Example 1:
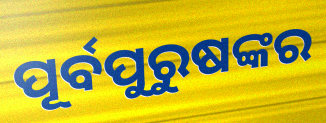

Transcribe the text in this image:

ପୂର୍ବପୁରୁଷଙ୍କର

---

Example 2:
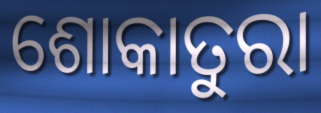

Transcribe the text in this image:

ଶୋକାତୁରା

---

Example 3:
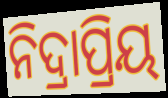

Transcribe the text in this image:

ନିଦ୍ରାପ୍ରିୟ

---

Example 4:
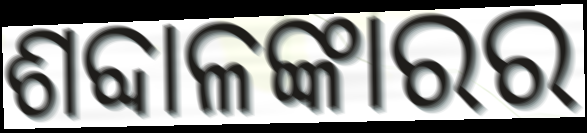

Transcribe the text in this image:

ଶବ୍ଦାଳଙ୍କାରର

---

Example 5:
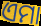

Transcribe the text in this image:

ଏମା